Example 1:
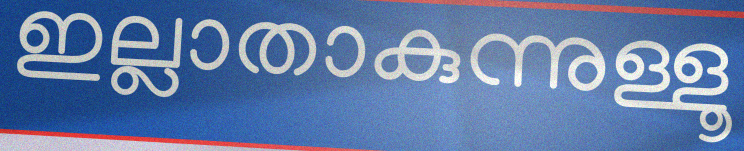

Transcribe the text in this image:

ഇല്ലാതാകുന്നുള്ളൂ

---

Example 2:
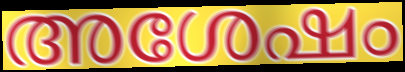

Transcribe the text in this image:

അശേഷം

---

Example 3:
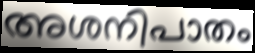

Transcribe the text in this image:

അശനിപാതം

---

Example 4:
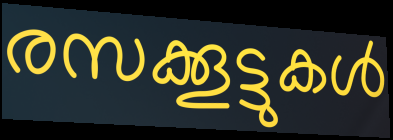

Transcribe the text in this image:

രസക്കൂട്ടുകൾ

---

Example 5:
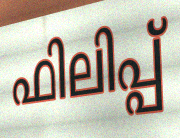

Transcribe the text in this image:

ഫിലിപ്പ്